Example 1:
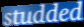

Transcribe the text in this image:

studded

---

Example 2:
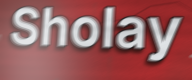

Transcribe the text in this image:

Sholay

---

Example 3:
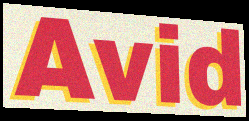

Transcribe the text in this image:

Avid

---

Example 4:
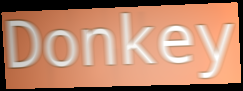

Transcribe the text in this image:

Donkey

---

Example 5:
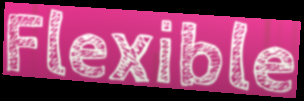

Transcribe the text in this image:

Flexible